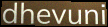
dhevuni